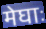
मेघाः